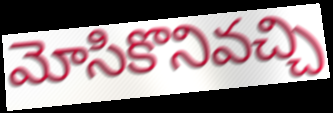
మోసికొనివచ్చి